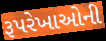
રૂપરેખાઓની